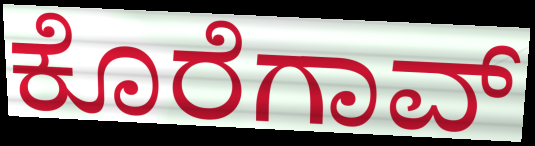
ಕೊರೆಗಾವ್